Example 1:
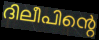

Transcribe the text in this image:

ദിലീപിന്റെ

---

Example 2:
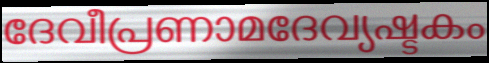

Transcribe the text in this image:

ദേവീപ്രണാമദേവ്യഷ്ടകം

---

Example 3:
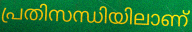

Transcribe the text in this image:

പ്രതിസന്ധിയിലാണ്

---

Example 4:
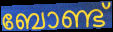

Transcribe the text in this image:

ബോണ്ട്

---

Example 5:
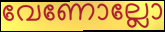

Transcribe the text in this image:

വേണോല്ലോ